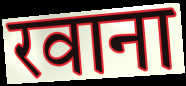
रवाना